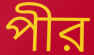
পীর